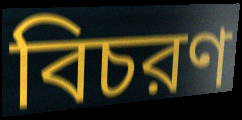
বিচরণ